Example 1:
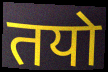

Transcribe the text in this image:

तयो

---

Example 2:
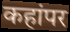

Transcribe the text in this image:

कहांपर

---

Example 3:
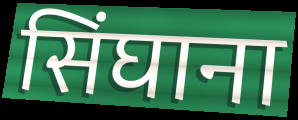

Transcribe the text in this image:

सिंघाना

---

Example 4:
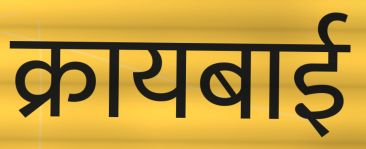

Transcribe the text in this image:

क्रायबाई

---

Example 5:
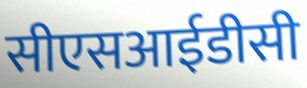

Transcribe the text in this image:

सीएसआईडीसी